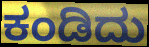
ಕಂಡಿದು